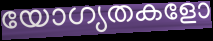
യോഗ്യതകളോ